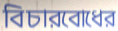
বিচারবোধের